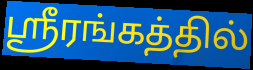
ஸ்ரீரங்கத்தில்